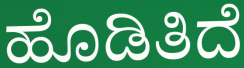
ಹೊಡಿತಿದೆ